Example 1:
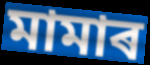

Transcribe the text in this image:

মামাৰ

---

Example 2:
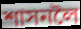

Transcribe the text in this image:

শাসনলৈ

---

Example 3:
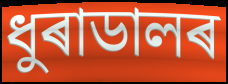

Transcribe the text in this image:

ধুৰাডালৰ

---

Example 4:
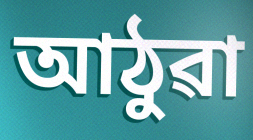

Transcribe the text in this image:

আঠুৱা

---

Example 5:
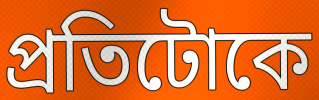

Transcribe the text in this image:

প্ৰতিটোকে